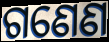
ଗଣେଣ